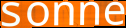
sonne